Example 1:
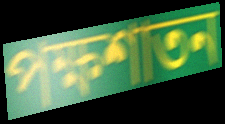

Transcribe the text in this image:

পক্ষশাতন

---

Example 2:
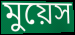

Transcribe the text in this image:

মুয়েস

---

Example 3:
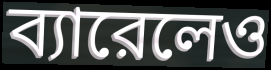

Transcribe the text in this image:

ব্যারেলেও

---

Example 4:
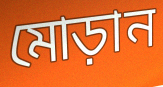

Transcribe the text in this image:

মোড়ান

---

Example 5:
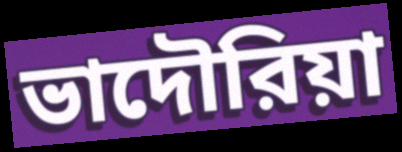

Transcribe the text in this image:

ভাদৌরিয়া